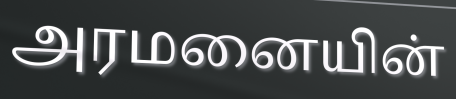
அரமனையின்